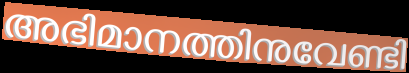
അഭിമാനത്തിനുവേണ്ടി